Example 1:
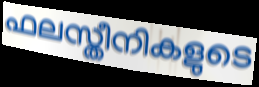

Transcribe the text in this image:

ഫലസ്തീനികളുടെ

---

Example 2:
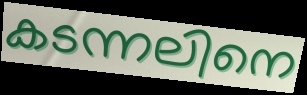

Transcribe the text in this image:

കടന്നലിനെ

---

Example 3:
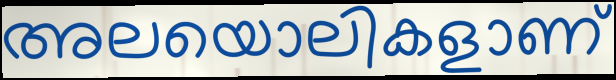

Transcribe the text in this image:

അലയൊലികളാണ്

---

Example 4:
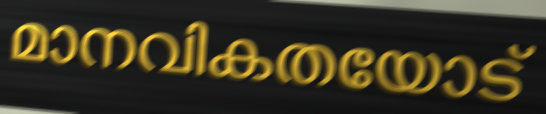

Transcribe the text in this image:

മാനവികതയോട്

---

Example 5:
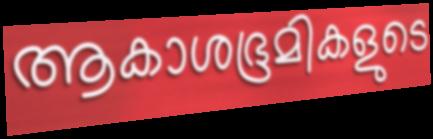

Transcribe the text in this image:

ആകാശഭൂമികളുടെ